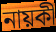
নায়কী